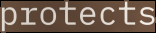
protects